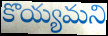
కొయ్యమని